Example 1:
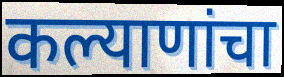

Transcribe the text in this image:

कल्याणांचा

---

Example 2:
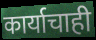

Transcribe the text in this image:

कार्याचाही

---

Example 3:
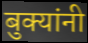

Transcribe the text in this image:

बुक्यांनी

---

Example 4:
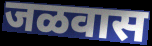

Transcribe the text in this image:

जळवास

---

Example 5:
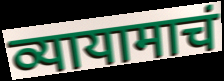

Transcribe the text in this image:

व्यायामाचं